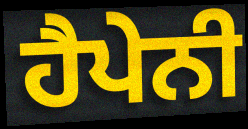
ਹੈਪੇਨੀ